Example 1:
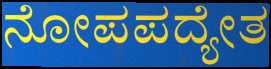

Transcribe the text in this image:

ನೋಪಪದ್ಯೇತ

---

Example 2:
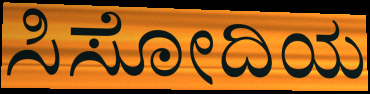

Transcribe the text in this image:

ಸಿಸೋದಿಯ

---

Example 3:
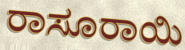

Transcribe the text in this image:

ರಾಸೂರಾಯಿ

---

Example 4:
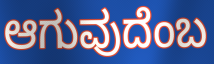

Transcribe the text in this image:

ಆಗುವುದೆಂಬ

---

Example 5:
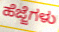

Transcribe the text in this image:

ಹೆಜ್ಜೆಗಳು